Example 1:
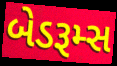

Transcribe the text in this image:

બેડરૂમ્સ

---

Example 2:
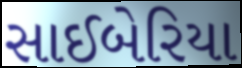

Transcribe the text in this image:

સાઈબેરિયા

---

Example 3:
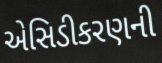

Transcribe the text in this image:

એસિડીકરણની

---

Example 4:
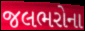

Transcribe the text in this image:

જલભરોના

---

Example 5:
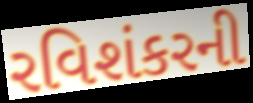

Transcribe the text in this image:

રવિશંકરની